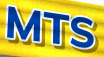
MTS